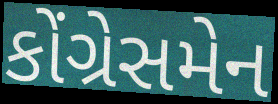
કોંગ્રેસમેન